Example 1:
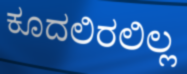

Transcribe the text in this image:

ಕೂದಲಿರಲಿಲ್ಲ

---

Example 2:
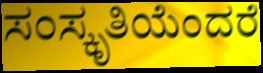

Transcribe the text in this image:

ಸಂಸ್ಕೃತಿಯೆಂದರೆ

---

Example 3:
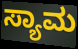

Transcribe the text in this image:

ಸ್ಯಾಮ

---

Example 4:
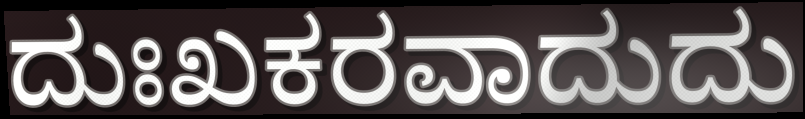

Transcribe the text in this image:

ದುಃಖಕರವಾದುದು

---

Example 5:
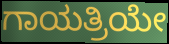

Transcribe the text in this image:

ಗಾಯತ್ರಿಯೇ